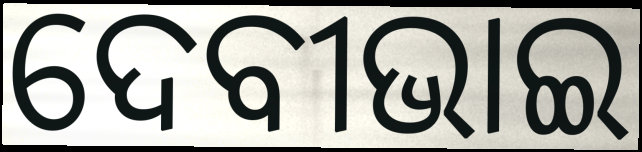
ଦେବୀଭାଇ